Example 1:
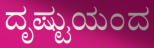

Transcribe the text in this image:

ದೃಷ್ಟುಯಂದ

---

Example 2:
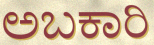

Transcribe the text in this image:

ಅಬಕಾರಿ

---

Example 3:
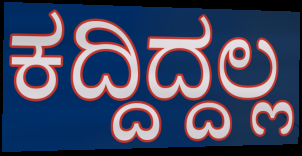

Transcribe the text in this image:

ಕದ್ದಿದ್ದಲ್ಲ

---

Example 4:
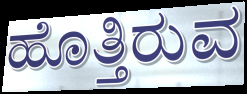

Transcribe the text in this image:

ಹೊತ್ತಿರುವ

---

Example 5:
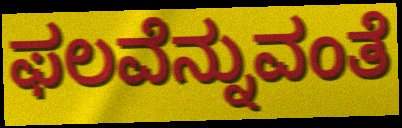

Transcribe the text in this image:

ಫಲವೆನ್ನುವಂತೆ